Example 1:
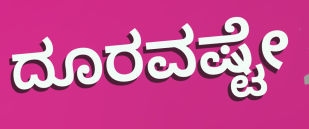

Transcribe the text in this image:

ದೂರವಷ್ಟೇ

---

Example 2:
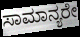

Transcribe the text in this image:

ಸಾಮಾನ್ಯರೇ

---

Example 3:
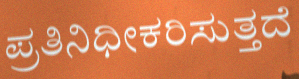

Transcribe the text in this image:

ಪ್ರತಿನಿಧೀಕರಿಸುತ್ತದೆ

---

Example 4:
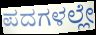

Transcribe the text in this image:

ಪದಗಳಲ್ಲೇ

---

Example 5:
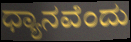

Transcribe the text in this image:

ಧ್ಯಾನವೆಂದು